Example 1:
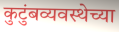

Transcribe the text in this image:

कुटुंबव्यवस्थेच्या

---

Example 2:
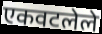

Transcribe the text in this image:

एकवटलेले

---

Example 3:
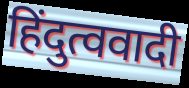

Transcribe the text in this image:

हिंदुत्ववादी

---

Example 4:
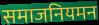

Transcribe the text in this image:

समाजनियमन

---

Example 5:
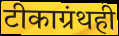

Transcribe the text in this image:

टीकाग्रंथही